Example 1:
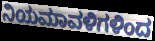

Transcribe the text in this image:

ನಿಯಮಾವಳಿಗಳಿಂದ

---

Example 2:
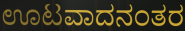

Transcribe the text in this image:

ಊಟವಾದನಂತರ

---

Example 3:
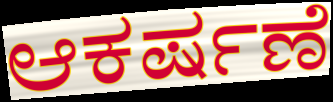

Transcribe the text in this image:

ಆಕರ್ಷಣೆ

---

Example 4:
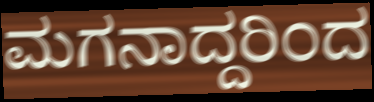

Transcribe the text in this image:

ಮಗನಾದ್ದರಿಂದ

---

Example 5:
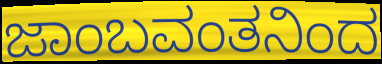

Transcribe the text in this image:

ಜಾಂಬವಂತನಿಂದ